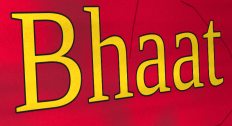
Bhaat